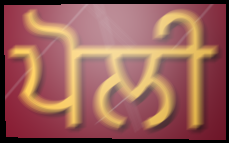
ਪੋਲੀ